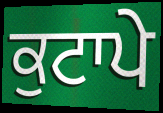
ਕੁਟਾਪੇ